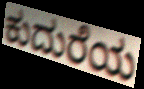
ಕುದುರೆಯ